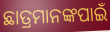
ଛାତ୍ରମାନଙ୍କପାଇଁ